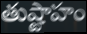
తుష్టాహం